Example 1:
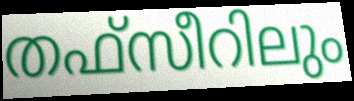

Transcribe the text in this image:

തഫ്സീറിലും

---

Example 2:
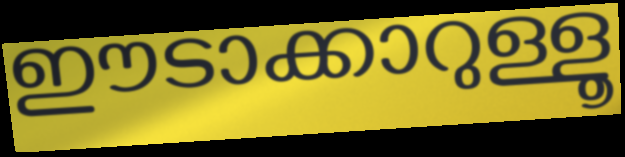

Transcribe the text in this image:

ഈടാക്കാറുള്ളൂ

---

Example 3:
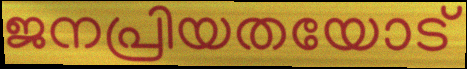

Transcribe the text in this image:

ജനപ്രിയതയോട്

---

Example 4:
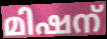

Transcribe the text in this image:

മിഷന്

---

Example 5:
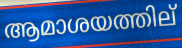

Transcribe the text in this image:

ആമാശയത്തില്